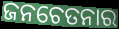
ଜନଚେତନାର